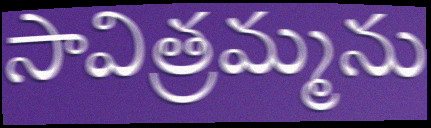
సావిత్రమ్మను